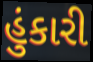
હુંકારી